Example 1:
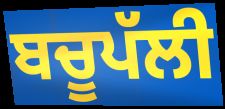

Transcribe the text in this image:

ਬਚੂਪੱਲੀ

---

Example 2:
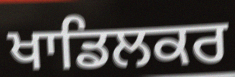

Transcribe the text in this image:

ਖਾਡਿਲਕਰ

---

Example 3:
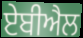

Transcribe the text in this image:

ਏਬੀਐਲ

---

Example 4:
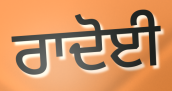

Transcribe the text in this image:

ਰਾਦੋਈ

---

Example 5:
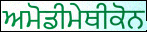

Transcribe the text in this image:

ਅਮੋਡੀਮੇਥੀਕੋਨ